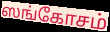
ஸங்கோசம்